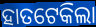
ହାତଟେକିଲା